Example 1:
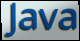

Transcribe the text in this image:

Java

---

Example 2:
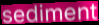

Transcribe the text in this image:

sediment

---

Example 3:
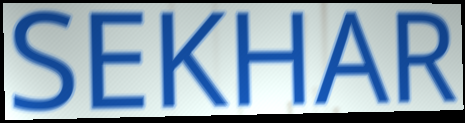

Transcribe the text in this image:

SEKHAR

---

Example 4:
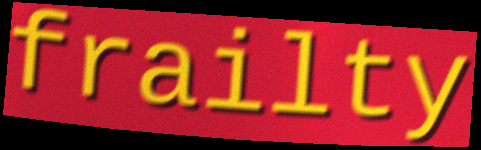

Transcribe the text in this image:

frailty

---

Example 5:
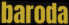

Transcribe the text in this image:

baroda